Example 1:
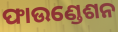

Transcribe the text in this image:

ଫାଉଣ୍ଡେଶନ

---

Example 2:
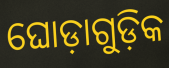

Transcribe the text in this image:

ଘୋଡ଼ାଗୁଡ଼ିକ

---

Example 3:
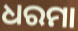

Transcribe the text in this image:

ଧରମା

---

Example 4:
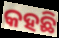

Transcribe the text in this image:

କହଛି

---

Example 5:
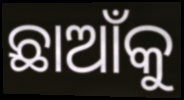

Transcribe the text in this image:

ଛାଆଁକୁ